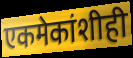
एकमेकांशीही